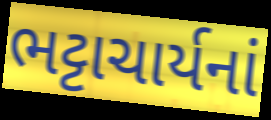
ભટ્ટાચાર્યનાં